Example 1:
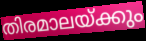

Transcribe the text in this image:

തിരമാലയ്ക്കും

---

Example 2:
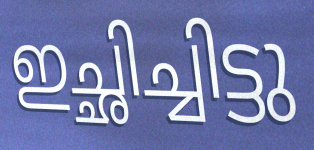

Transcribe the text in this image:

ഇച്ഛിച്ചിട്ടു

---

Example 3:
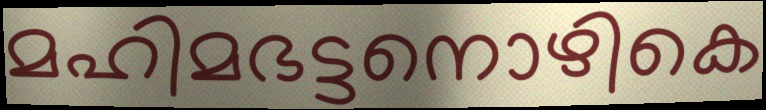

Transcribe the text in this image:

മഹിമഭട്ടനൊഴികെ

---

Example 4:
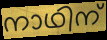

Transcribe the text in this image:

നാഥിന്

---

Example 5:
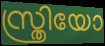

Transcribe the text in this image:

സ്ത്രിയോ